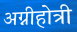
अग्नीहोत्री